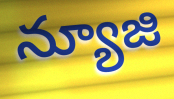
న్యూజి